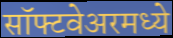
सॉफ्टवेअरमध्ये